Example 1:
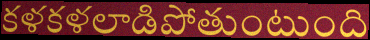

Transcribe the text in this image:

కళకళలాడిపోతుంటుంది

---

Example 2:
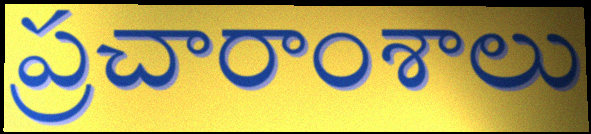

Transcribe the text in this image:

ప్రచారాంశాలు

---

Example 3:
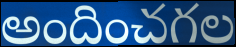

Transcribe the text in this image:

అందించగల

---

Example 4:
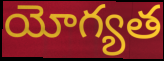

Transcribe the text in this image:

యోగ్యత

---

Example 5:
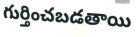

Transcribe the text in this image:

గుర్తించబడతాయి